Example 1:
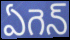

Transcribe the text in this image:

ఏగెన్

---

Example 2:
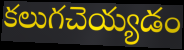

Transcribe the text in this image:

కలుగచెయ్యడం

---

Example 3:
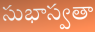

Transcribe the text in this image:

సుభాస్వతా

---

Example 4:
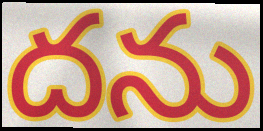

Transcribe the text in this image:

దను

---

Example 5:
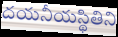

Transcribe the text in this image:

దయనీయస్థితిని